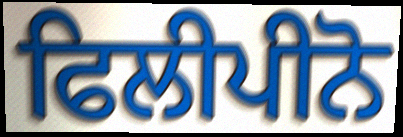
ਫਿਲੀਪੀਨੋ